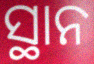
ସ୍ଥାନ